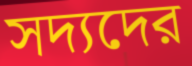
সদ্যদের